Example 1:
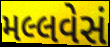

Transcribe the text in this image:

મલ્લવેસં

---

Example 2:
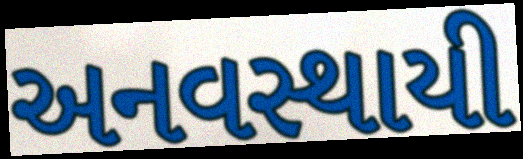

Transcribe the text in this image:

અનવસ્થાયી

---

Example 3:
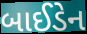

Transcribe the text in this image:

બાઈડેન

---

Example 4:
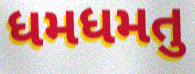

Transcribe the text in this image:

ધમધમતુ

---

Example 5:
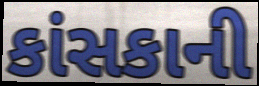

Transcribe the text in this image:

કાંસકાની